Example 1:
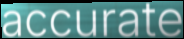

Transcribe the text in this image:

accurate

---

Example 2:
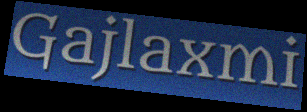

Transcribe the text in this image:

Gajlaxmi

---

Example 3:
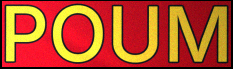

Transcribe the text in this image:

POUM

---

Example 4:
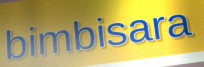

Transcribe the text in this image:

bimbisara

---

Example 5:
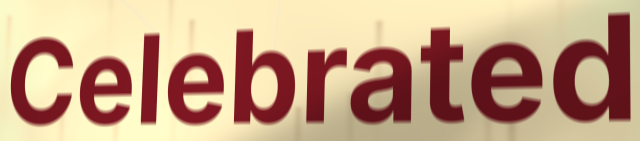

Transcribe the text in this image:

Celebrated